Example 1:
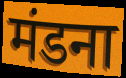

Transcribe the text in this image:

मंडना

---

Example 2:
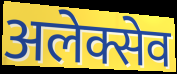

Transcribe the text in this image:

अलेक्सेव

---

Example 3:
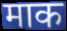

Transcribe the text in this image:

माक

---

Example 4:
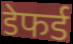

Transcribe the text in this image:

डेफर्ड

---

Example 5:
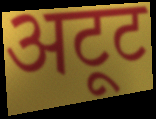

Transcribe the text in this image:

अटूट